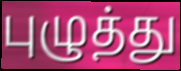
புழுத்து